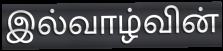
இல்வாழ்வின்